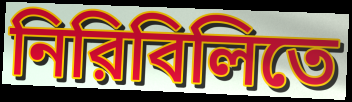
নিরিবিলিতে